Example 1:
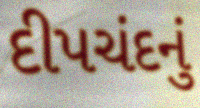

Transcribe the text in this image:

દીપચંદનું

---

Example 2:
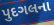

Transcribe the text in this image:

પુદગલના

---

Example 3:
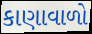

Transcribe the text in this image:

કાણાવાળો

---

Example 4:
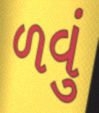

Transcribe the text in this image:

ળવું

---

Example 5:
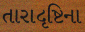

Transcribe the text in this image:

તારાદૃષ્ટિના